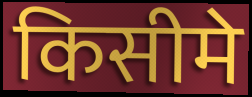
किसीमे